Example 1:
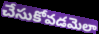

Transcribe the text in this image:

చేసుకోవడమెలా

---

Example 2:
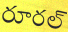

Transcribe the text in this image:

రూరల్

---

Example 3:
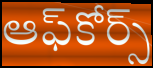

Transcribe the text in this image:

ఆఫ్‌కోర్స్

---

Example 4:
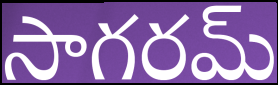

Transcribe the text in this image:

సాగరమ్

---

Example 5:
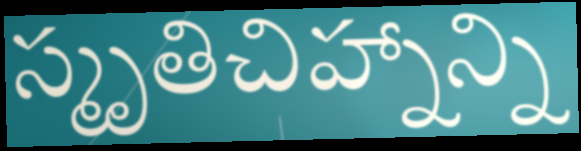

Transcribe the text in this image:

స్మృతిచిహ్నాన్ని